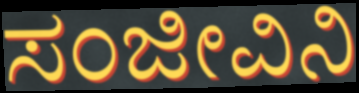
ಸಂಜೀವಿನಿ